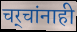
चर्चांनाही